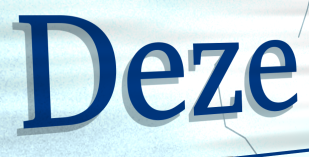
Deze